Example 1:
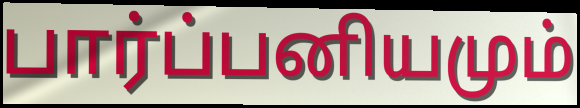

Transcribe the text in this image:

பார்ப்பனியமும்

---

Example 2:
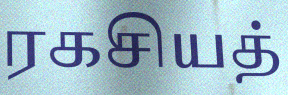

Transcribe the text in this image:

ரகசியத்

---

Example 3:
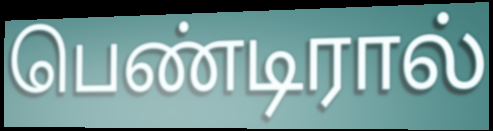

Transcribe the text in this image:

பெண்டிரால்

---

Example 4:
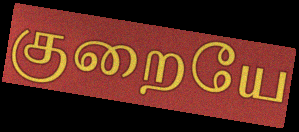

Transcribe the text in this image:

குறையே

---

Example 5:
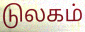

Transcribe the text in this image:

டுலகம்